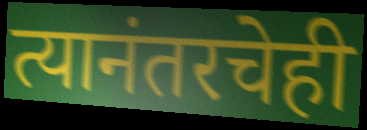
त्यानंतरचेही